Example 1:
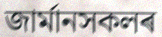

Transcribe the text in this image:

জাৰ্মানসকলৰ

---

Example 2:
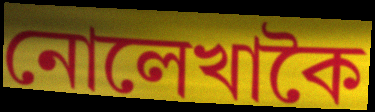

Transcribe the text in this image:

নোলেখাকৈ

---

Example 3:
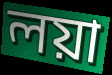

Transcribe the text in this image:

লয়া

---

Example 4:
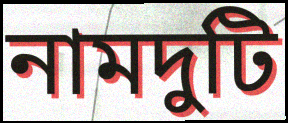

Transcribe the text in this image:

নামদুটি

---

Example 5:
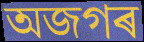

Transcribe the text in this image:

অজগৰ